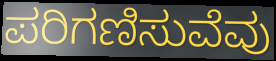
ಪರಿಗಣಿಸುವೆವು